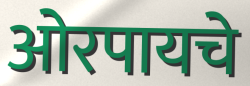
ओरपायचे